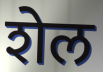
शेल